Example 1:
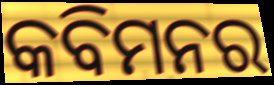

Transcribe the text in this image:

କବିମନର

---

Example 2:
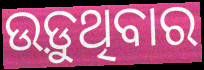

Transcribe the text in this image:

ଉଡ଼ୁଥିବାର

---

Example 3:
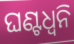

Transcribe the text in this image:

ଘଣ୍ଟଧ୍ୱନି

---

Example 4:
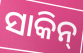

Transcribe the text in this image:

ସାକିନ୍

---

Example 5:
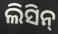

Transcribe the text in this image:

ଲିସିନ୍